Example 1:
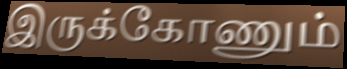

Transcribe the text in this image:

இருக்கோணும்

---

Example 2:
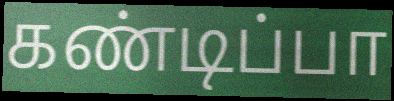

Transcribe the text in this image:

கண்டிப்பா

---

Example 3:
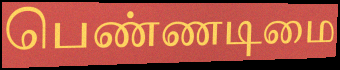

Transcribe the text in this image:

பெண்ணடிமை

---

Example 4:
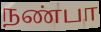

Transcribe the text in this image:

நண்பா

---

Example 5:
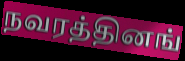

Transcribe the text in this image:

நவரத்தினங்